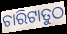
ଚାରିଟାତୁଠ